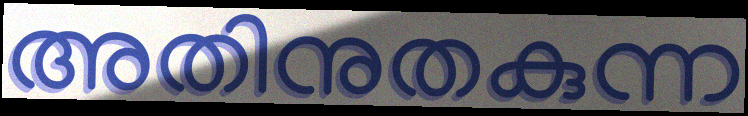
അതിനുതകുന്ന